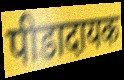
पीडादायक